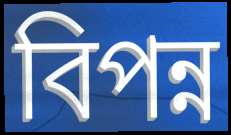
বিপন্ন